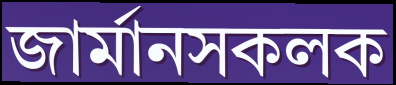
জাৰ্মানসকলক